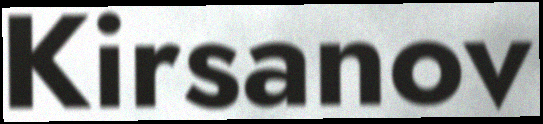
Kirsanov